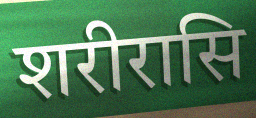
शरीरासि